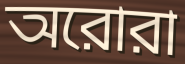
অরোরা